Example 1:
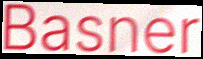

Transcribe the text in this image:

Basner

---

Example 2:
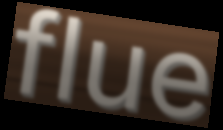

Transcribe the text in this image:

flue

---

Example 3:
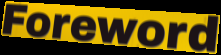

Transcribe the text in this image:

Foreword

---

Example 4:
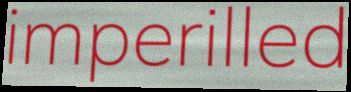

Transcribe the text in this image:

imperilled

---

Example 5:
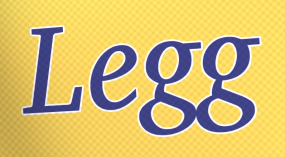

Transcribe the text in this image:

Legg